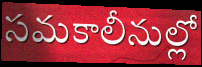
సమకాలీనుల్లో